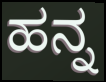
ಹನ್ನ